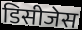
डिसीजेस